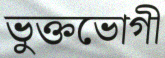
ভুক্তভোগী